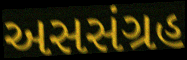
અસસંગ્રહ